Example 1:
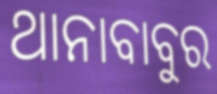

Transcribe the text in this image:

ଥାନାବାବୁର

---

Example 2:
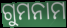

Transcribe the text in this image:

ଗୁମନାମ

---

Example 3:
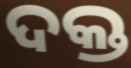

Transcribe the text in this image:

ଦକ୍ତ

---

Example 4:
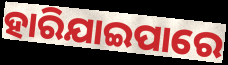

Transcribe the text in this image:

ହାରିଯାଇପାରେ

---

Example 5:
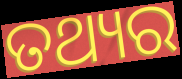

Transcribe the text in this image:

ତଥ୍ୟର